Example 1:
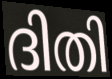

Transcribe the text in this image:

ദിതി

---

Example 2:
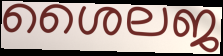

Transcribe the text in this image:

ശൈലജ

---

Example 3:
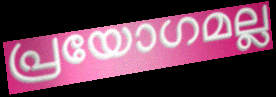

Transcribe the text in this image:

പ്രയോഗമല്ല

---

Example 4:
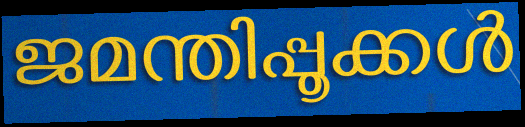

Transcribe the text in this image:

ജമന്തിപ്പൂക്കൾ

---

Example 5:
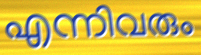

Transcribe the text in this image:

എന്നിവരും